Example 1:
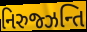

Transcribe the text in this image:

નિરુજ્ઝન્તિ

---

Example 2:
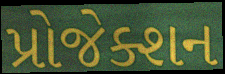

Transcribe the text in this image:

પ્રોજેક્શન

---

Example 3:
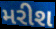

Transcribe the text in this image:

મરીશ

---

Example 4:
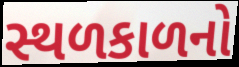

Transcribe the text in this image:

સ્થળકાળનો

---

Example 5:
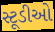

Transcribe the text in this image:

સ્ટૂડીઓ